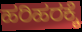
ಹರಿಹರಕ್ಕೆ